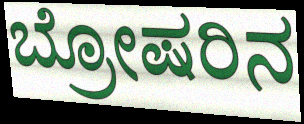
ಬ್ರೋಷರಿನ